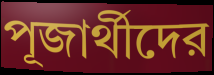
পূজার্থীদের